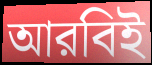
আরবিই